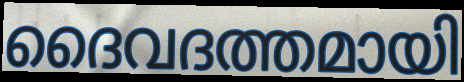
ദൈവദത്തമായി